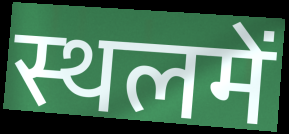
स्थलमें